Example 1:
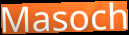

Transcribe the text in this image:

Masoch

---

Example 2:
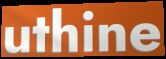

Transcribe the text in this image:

uthine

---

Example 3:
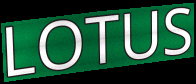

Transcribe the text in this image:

LOTUS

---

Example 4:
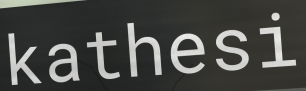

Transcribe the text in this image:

kathesi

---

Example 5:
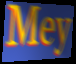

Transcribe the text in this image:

Mey